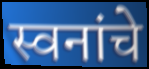
स्वनांचे